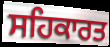
ਸਹਿਕਾਰਤ